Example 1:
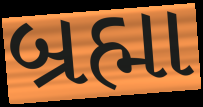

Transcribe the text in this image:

બ્રહ્મા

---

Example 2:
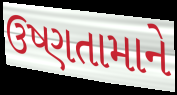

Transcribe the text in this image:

ઉષ્ણતામાને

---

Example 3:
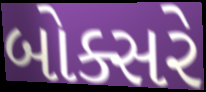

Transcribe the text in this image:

બોક્સરે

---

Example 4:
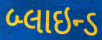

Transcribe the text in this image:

બ્લાઇન્ડ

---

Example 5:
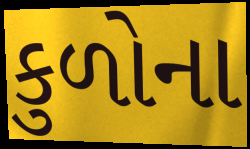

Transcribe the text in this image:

કુળોના